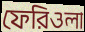
ফেরিওলা